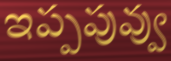
ఇప్పపువ్వు